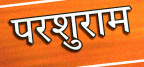
परशुराम